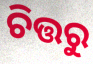
ଚିତ୍ତରୁ